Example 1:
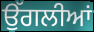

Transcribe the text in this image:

ਉੱਗਲੀਆਂ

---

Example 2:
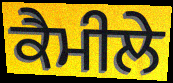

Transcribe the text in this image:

ਕੈਮੀਲੇ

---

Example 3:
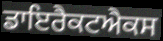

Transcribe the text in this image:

ਡਾਇਰੈਕਟਐਕਸ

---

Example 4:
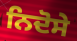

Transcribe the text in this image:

ਨਿਦੋਸੇ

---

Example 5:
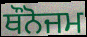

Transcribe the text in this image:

ਥੌਨੋਜਮ